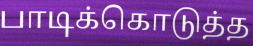
பாடிக்கொடுத்த